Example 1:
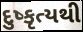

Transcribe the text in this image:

દુષ્કૃત્યથી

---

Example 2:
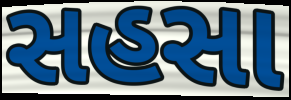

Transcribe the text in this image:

સહસા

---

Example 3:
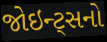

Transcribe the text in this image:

જોઇન્ટ્સનો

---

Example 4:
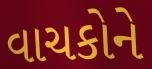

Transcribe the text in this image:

વાચકોને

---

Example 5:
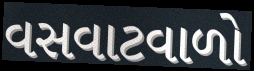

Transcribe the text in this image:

વસવાટવાળો